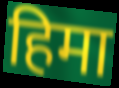
हिमा